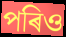
পৰিও